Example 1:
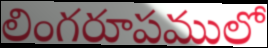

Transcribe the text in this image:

లింగరూపములో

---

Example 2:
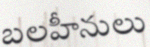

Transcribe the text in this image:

బలహీనులు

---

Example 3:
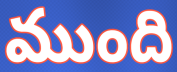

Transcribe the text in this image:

ముంది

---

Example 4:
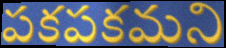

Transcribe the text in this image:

పకపకమని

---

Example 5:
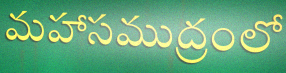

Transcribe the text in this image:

మహాసముద్రంలో